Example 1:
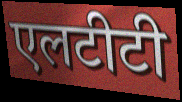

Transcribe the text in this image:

एलटीटी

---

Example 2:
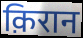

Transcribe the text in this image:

क़िरान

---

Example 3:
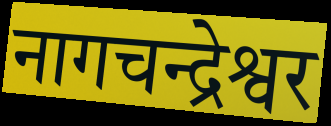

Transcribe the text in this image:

नागचन्द्रेश्वर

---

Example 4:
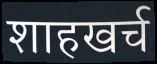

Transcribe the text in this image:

शाहखर्च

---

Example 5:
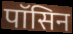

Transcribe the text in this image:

पॉसिन